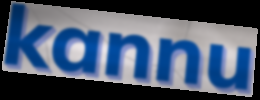
kannu